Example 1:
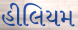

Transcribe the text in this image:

હીલિયમ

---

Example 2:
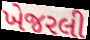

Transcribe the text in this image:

ખેજરલી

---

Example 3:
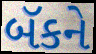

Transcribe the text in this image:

બૅકને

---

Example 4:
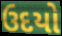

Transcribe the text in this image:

ઉદયો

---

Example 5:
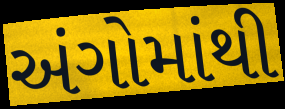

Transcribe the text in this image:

અંગોમાંથી